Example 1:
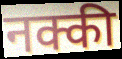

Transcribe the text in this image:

नक्की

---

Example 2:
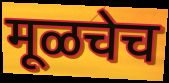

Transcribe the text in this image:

मूळचेच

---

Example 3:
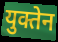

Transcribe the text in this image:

युक्तेन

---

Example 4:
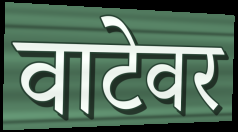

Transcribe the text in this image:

वाटेवर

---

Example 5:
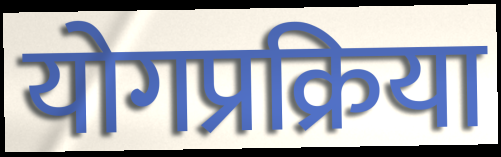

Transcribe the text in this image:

योगप्रक्रिया